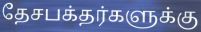
தேசபக்தர்களுக்கு